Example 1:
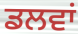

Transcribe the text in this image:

ਡਲਵਾਂ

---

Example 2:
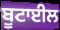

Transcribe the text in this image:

ਬੂਟਾਈਲ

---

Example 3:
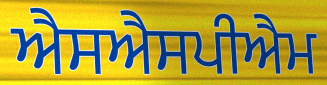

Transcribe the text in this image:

ਐਸਐਸਪੀਐਮ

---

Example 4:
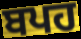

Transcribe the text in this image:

ਬਪਹ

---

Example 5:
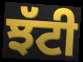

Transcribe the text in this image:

ਝੱਟੀ